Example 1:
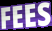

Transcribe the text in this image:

FEES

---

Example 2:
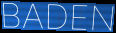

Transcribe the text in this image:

BADEN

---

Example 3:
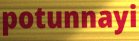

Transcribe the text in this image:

potunnayi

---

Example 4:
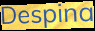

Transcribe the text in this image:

Despina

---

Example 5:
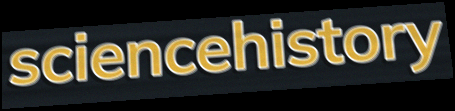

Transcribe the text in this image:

sciencehistory